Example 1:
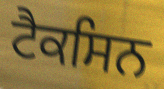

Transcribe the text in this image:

ਟੈਕਸਿਨ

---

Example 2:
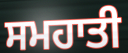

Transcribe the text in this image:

ਸਮਹਾਤੀ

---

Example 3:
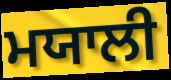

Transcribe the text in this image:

ਮਯਾਲੀ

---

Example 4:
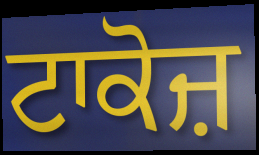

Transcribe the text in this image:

ਟਾਕੋਜ਼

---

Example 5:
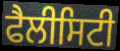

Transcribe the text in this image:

ਫੈਲੀਸਿਟੀ